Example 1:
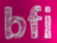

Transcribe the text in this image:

bfi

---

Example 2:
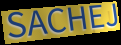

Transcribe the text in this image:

SACHEJ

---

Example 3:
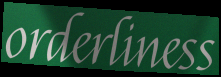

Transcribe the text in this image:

orderliness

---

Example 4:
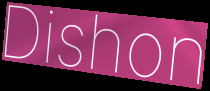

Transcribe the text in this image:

Dishon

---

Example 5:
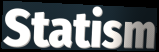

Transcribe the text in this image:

Statism